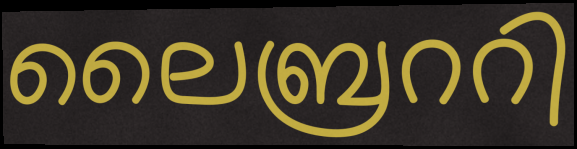
ലൈബ്രററി